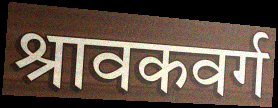
श्रावकवर्ग